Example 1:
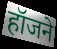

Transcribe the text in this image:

हॉजने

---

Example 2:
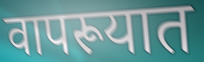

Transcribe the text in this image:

वापरूयात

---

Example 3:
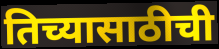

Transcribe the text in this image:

तिच्यासाठीची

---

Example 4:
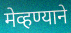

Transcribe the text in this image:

मेव्हण्याने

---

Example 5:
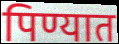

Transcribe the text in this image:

पिण्यात